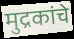
मुद्रकांचे